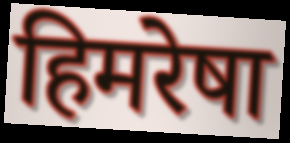
हिमरेषा